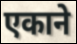
एकाने